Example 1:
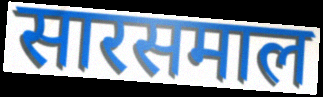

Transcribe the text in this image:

सारसमाल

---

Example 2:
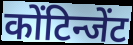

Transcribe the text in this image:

कोंटिन्जेंट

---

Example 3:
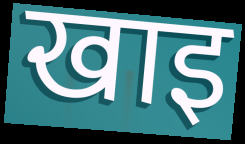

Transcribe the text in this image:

खाइ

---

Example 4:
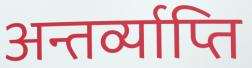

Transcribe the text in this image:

अन्तर्व्याप्ति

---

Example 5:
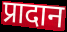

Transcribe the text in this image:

प्रादान